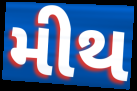
મીથ